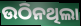
ଉଠିନଥିଲା